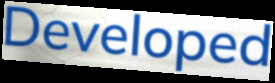
Developed